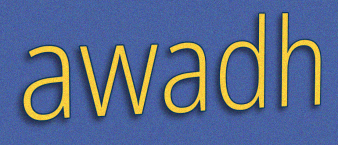
awadh